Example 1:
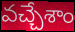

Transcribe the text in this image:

వచ్చేశాం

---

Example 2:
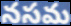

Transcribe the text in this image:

నసమ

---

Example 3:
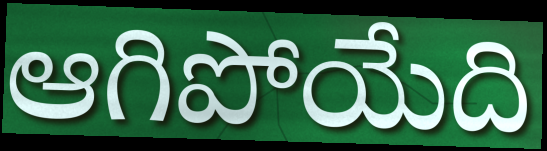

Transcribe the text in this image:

ఆగిపోయేది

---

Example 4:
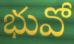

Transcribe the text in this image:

భువో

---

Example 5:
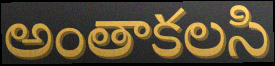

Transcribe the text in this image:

అంతాకలసి